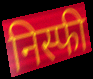
निस्फी